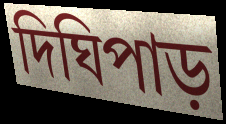
দিঘিপাড়